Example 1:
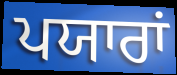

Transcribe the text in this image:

ਪਯਾਰਾਂ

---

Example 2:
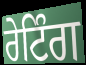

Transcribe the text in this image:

ਰੇਟਿੰਗ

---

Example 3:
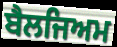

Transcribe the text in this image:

ਬੈਲਜਿਅਮ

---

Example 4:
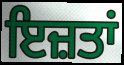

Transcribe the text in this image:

ਇਜ਼ਤਾਂ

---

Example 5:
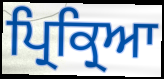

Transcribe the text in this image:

ਪ੍ਰਿਕ੍ਰਿਆ